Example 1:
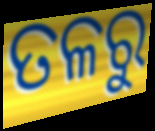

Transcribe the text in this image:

ତଳରୁ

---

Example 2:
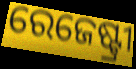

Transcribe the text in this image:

ରେଜେଷ୍ଟ୍ରୀ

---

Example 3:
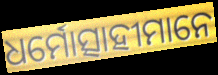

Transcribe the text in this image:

ଧର୍ମୋତ୍ସାହୀମାନେ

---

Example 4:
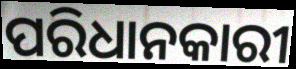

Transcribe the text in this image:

ପରିଧାନକାରୀ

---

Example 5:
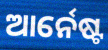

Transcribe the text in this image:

ଆର୍ନେଷ୍ଟ